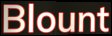
Blount